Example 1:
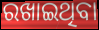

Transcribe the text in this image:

ରଖାଇଥିବା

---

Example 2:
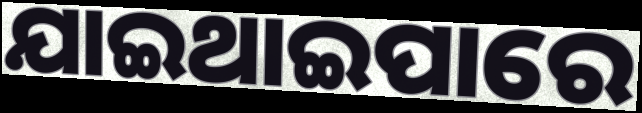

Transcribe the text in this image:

ଯାଇଥାଇପାରେ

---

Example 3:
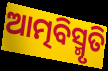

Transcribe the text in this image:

ଆତ୍ମବିସ୍ମୃତି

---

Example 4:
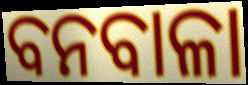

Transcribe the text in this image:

ବନବାଳା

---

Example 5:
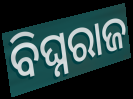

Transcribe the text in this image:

ବିଘ୍ନରାଜ